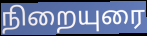
நிறையுரை